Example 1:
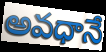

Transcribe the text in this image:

అవధానే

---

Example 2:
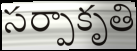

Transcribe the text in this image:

సర్పాకృతి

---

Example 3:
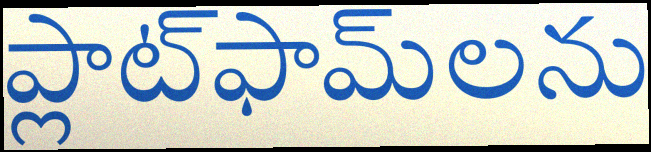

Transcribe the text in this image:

ప్లాట్‌ఫామ్‌లను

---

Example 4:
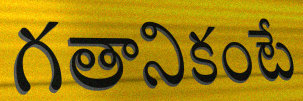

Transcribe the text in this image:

గతానికంటే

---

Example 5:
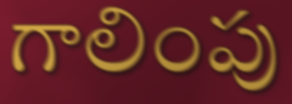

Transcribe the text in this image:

గాలింపు